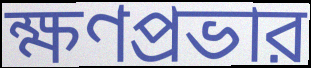
ক্ষণপ্রভার